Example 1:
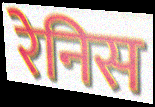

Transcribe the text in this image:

रेनिस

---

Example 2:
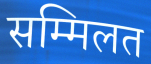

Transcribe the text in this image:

सम्मिलत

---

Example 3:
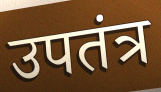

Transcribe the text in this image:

उपतंत्र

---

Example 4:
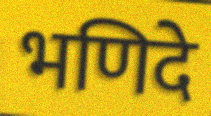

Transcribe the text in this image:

भणिदे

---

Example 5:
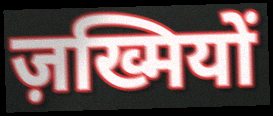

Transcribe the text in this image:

ज़ख्मियों